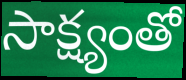
సాక్ష్యంతో